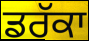
ਡਰੱਕਾ